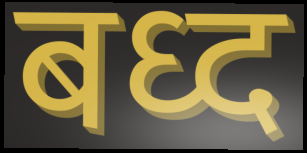
बध्द